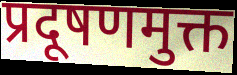
प्रदूषणमुक्त